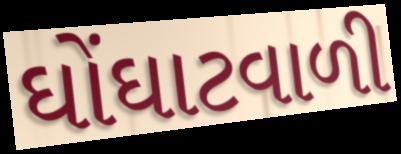
ઘોંઘાટવાળી